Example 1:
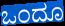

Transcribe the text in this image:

ಒಂದೂ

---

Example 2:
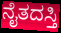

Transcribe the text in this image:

ನೈತದಸ್ತಿ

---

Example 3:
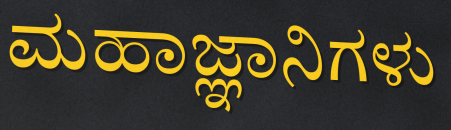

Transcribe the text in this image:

ಮಹಾಜ್ಞಾನಿಗಳು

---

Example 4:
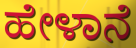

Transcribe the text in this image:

ಹೇಳಾನೆ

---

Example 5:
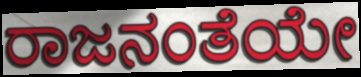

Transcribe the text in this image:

ರಾಜನಂತೆಯೇ